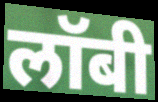
लॉबी